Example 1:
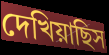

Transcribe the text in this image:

দেখিয়াছিস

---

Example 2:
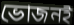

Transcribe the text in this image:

ভোজনই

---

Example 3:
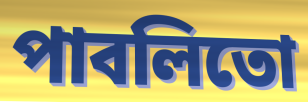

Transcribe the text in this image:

পাবলিতো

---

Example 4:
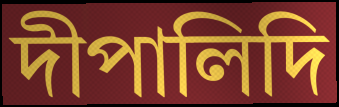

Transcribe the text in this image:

দীপালিদি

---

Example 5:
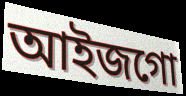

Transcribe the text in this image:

আইজগো